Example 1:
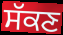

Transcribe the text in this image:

ਸੱਕਣ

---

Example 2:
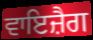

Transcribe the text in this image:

ਵਾਇਜ਼ੈਗ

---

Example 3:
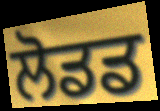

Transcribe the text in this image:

ਲੋਡਡ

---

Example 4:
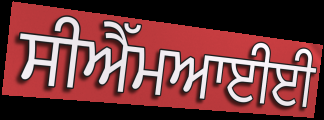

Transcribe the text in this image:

ਸੀਐੱਮਆਈਈ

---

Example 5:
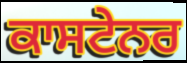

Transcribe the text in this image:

ਕਾਸਟੇਨਰ